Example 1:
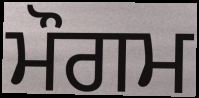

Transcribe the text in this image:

ਮੌਗਮ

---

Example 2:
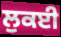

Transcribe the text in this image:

ਲੁਕਈ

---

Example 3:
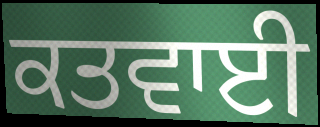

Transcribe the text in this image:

ਕਤਵਾਈ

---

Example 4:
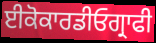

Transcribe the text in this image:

ਈਕੋਕਾਰਡੀਓਗ੍ਰਾਫੀ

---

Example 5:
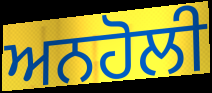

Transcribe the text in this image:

ਅਨਹੋਲੀ